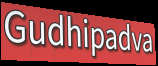
Gudhipadva